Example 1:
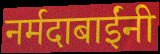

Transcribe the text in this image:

नर्मदाबाईंनी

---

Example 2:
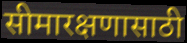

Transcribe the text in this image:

सीमारक्षणासाठी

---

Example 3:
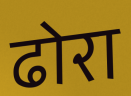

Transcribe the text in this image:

ढोरा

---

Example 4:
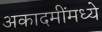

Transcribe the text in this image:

अकादमींमध्ये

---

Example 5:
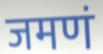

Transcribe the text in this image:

जमणं